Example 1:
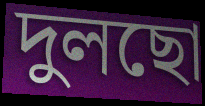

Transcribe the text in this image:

দুলছো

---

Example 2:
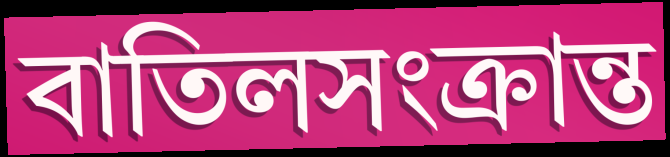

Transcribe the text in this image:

বাতিলসংক্রান্ত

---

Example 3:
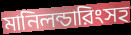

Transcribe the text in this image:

মানিলন্ডারিংসহ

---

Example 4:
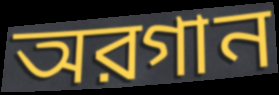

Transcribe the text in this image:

অরগান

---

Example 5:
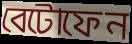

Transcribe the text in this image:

বেটোফেন